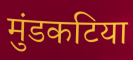
मुंडकटिया